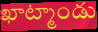
ఖాట్మాండు